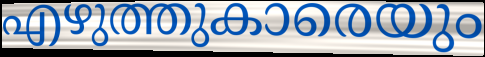
എഴുത്തുകാരെയും